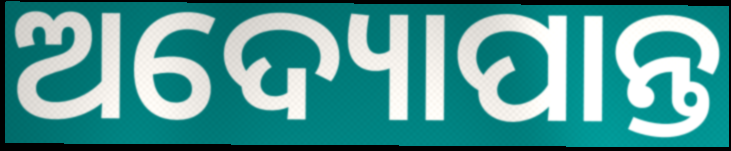
ଅଦ୍ୟୋପାନ୍ତ